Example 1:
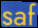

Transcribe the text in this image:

saf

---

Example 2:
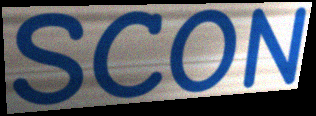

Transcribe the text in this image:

SCON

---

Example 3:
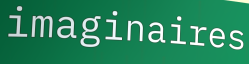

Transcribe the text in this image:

imaginaires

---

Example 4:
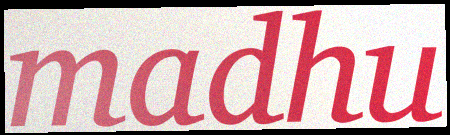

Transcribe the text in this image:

madhu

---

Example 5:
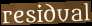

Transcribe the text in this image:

residual